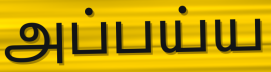
அப்பய்ய